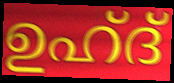
ഉഹ്ദ്